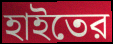
হাইতের